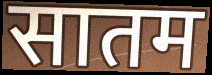
सातम